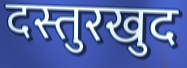
दस्तुरखुद